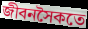
জীবনসৈকতে